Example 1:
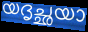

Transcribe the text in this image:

യദൃച്ഛയാ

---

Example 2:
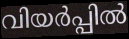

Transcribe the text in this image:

വിയർപ്പിൽ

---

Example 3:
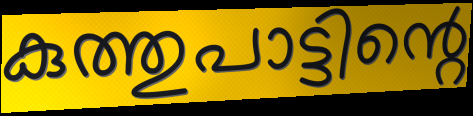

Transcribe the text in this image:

കുത്തുപാട്ടിന്റെ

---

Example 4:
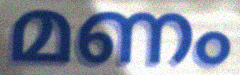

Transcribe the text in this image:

മണം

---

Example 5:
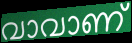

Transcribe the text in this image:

വാവാണ്